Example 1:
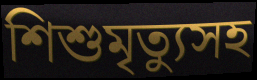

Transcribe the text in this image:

শিশুমৃত্যুসহ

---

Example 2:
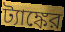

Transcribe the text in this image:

ট্যাঙ্কের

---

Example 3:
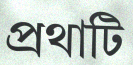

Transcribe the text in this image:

প্রথাটি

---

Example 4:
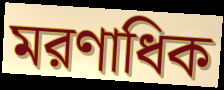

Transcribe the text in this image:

মরণাধিক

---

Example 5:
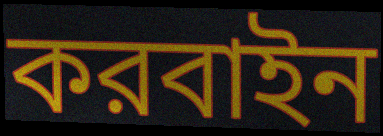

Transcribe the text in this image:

করবাইন